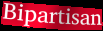
Bipartisan